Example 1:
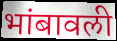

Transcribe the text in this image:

भांबावली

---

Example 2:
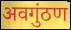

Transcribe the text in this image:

अवगुंठण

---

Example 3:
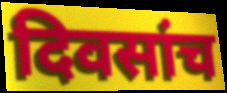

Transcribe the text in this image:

दिवसांच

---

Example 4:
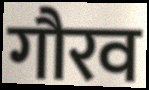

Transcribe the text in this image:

गौरव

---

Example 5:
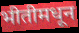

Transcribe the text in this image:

भीतीमधून